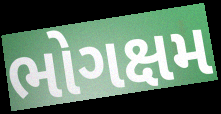
ભોગક્ષમ